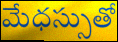
మేధస్సుతో